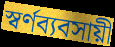
স্বর্ণব্যবসায়ী